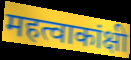
महत्वाकांक्षी